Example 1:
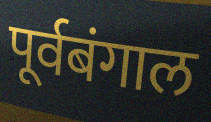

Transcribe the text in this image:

पूर्वबंगाल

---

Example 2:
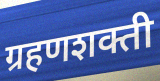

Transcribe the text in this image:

ग्रहणशक्ती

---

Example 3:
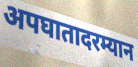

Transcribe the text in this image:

अपघातादरम्यान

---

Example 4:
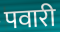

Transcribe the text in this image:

पवारी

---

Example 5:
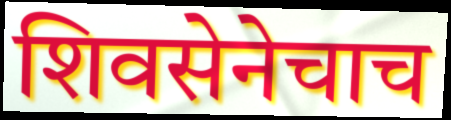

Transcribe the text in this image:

शिवसेनेचाच